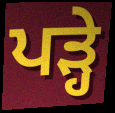
ਪਡ਼੍ਹੇ